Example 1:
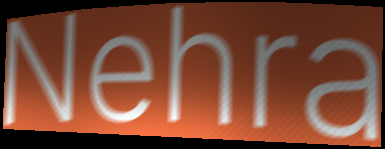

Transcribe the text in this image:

Nehra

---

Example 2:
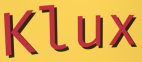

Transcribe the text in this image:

Klux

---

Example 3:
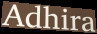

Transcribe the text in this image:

Adhira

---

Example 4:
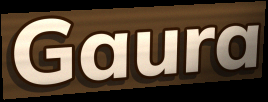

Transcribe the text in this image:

Gaura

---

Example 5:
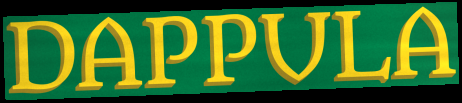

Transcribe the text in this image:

DAPPULA